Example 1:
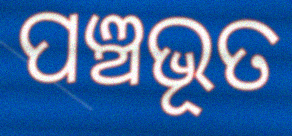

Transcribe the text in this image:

ପଞ୍ଚଭୂତ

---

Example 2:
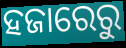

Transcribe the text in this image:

ହଜାରେରୁ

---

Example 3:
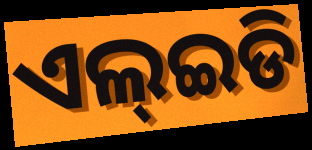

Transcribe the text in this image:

ଏଲ୍ଇଡି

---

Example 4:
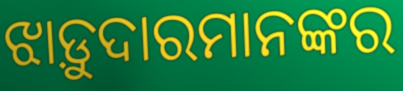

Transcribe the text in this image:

ଝାଡ଼ୁଦାରମାନଙ୍କର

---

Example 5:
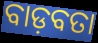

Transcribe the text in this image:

ବାଡ଼ବତା